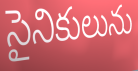
సైనికులును